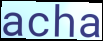
acha